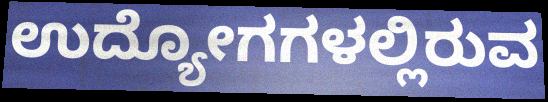
ಉದ್ಯೋಗಗಳಲ್ಲಿರುವ